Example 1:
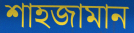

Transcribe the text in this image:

শাহজামান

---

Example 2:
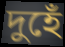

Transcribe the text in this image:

দুহেঁ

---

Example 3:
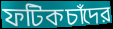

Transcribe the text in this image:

ফটিকচাঁদের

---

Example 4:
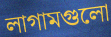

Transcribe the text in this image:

লাগামগুলো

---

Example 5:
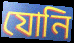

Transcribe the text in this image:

যোনি